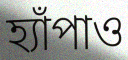
হ্যাঁপাও